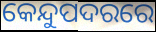
କେନ୍ଦୁପଦରରେ